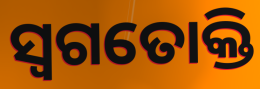
ସ୍ୱଗତୋକ୍ତି